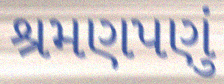
શ્રમણપણું